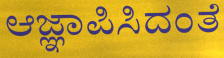
ಆಜ್ಞಾಪಿಸಿದಂತೆ